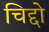
चिद्दो